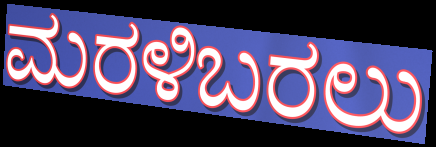
ಮರಳಿಬರಲು